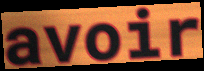
avoir